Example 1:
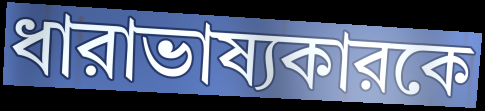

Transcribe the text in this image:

ধারাভাষ্যকারকে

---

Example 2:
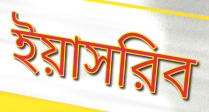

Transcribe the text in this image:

ইয়াসরিব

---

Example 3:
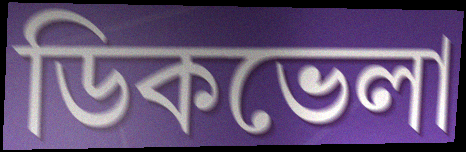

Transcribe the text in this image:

ডিকভেলা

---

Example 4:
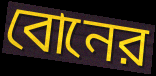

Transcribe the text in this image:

বোনের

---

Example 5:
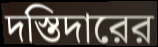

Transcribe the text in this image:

দস্তিদারের